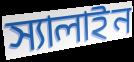
স্যালাইন